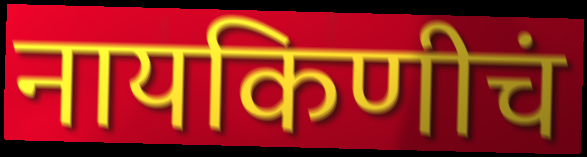
नायकिणीचं